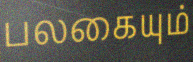
பலகையும்